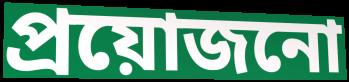
প্ৰয়োজনো